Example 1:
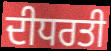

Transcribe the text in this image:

ਦੀਧਰਤੀ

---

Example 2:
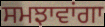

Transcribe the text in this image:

ਸਮਝਾਵਾਂਗਾ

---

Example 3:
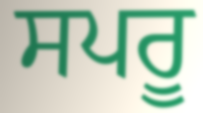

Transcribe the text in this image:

ਸਪਰੂ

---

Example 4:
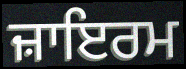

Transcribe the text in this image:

ਜ਼ਾਇਰਮ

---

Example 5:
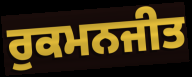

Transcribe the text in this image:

ਰੁਕਮਨਜੀਤ